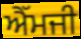
ਐੱਮਜੀ